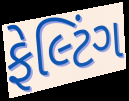
ફેલ્ટિંગ